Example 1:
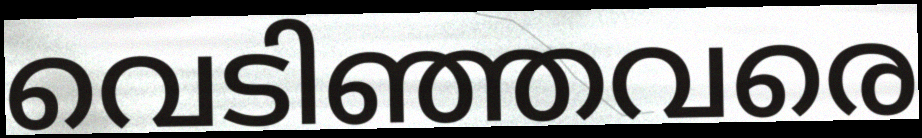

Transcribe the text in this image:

വെടിഞ്ഞവരെ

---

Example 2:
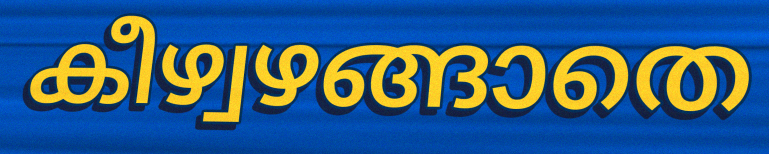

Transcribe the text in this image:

കീഴ്വഴങ്ങാതെ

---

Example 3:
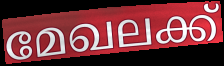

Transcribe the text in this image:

മേഖലക്ക്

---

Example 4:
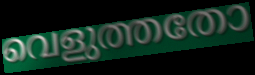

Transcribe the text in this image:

വെളുത്തതോ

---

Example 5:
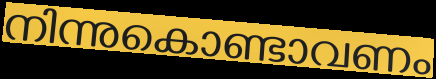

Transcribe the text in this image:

നിന്നുകൊണ്ടാവണം